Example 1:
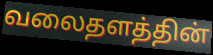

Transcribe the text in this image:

வலைதளத்தின்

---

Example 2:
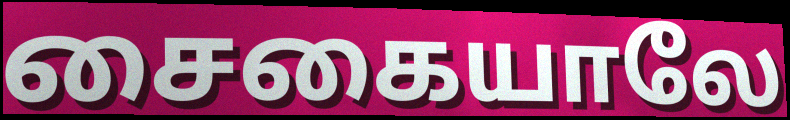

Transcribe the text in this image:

சைகையாலே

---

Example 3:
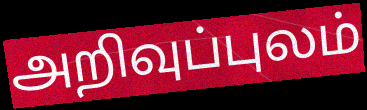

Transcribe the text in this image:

அறிவுப்புலம்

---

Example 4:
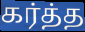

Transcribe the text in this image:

கர்த்த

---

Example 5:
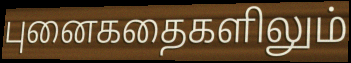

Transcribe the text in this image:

புனைகதைகளிலும்